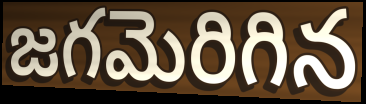
జగమెరిగిన